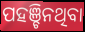
ପହଞ୍ଚିନଥିବା